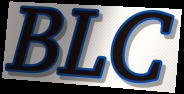
BLC